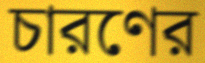
চারণের